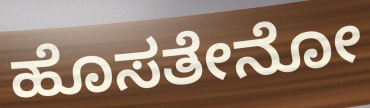
ಹೊಸತೇನೋ